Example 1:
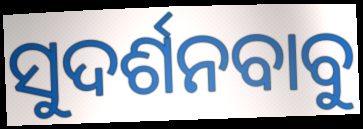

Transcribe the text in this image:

ସୁଦର୍ଶନବାବୁ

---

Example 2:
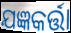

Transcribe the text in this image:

ଯଜ୍ଞକର୍ତ୍ତା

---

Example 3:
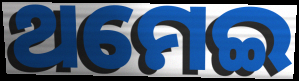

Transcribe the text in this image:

ଥମେଇ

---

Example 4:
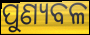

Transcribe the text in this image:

ପୁଣ୍ୟବଳ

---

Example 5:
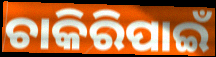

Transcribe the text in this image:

ଚାକିରିପାଇଁ